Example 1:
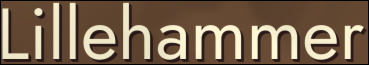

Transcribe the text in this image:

Lillehammer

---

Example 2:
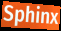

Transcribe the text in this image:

Sphinx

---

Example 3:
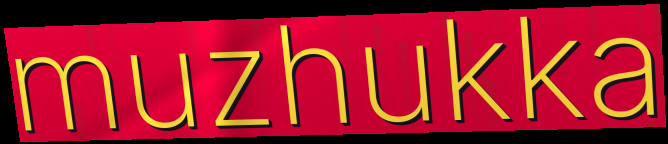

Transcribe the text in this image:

muzhukka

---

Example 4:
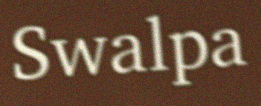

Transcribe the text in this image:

Swalpa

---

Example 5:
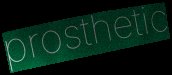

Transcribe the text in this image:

prosthetic